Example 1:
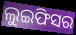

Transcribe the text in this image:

ଲୁଇଫିସର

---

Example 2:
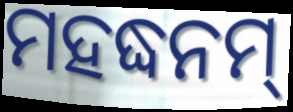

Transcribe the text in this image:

ମହଦ୍ଧନମ୍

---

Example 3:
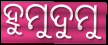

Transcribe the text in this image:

ହୁମୁଦୁମୁ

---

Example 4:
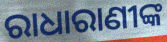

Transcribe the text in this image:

ରାଧାରାଣୀଙ୍କ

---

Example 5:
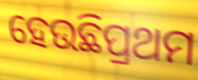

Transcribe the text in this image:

ହେଉଛିପ୍ରଥମ